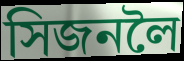
সিজনলৈ